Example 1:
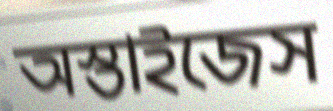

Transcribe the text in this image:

অস্তাইজেস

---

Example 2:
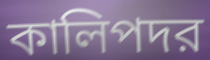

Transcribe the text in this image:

কালিপদর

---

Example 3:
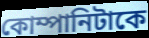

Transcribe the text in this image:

কোম্পানিটাকে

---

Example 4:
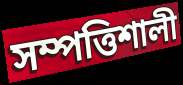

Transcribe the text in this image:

সম্পত্তিশালী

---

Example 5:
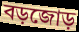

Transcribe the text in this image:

বড়জোড়